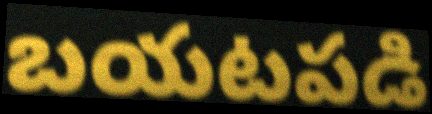
బయటపడి